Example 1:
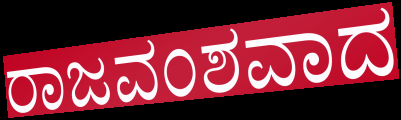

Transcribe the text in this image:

ರಾಜವಂಶವಾದ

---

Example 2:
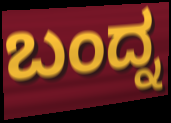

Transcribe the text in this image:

ಬಂದ್ನ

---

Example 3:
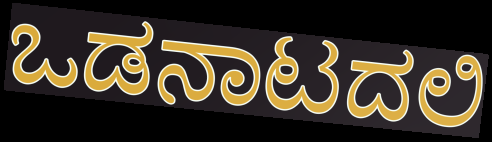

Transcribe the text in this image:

ಒಡನಾಟದಲಿ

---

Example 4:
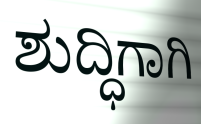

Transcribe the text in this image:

ಶುದ್ಧಿಗಾಗಿ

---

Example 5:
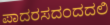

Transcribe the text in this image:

ಪಾದರಸದಂದದಲಿ